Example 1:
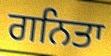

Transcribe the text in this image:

ਗਨਿਤਾ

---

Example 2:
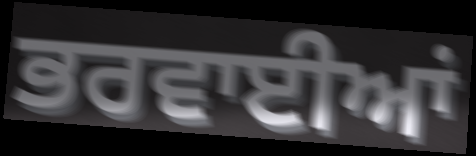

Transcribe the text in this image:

ਭਰਵਾਈਆਂ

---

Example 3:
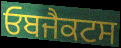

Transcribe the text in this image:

ਓਬਜੈਕਟਸ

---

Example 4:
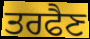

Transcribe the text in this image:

ਤਰਫੈਣ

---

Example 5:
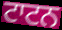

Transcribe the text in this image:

ਟਾਟਨ